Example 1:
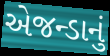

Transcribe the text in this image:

એજન્ડાનું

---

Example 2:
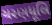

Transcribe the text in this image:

ચરણધૂલિ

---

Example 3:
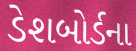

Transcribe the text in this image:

ડેશબોર્ડના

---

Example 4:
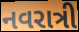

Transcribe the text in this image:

નવરાત્રી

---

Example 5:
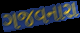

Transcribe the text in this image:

ગજવનારા